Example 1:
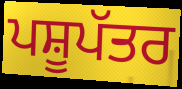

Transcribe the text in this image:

ਪਸ਼ੂਪੱਤਰ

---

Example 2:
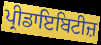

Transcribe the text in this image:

ਪ੍ਰੀਡਾਇਬਿਟੀਜ਼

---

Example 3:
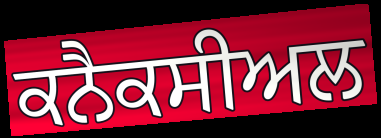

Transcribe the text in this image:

ਕਨੈਕਸੀਅਲ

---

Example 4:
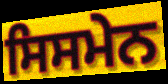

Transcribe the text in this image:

ਸਿਸਮੇਨ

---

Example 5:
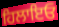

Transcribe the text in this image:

ਹਿਲਾਇਓ